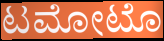
ಟಮೋಟೊ